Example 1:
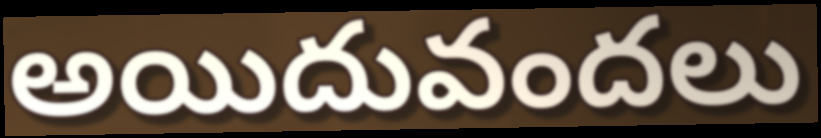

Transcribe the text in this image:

అయిదువందలు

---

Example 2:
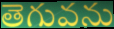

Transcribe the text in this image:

తెగువను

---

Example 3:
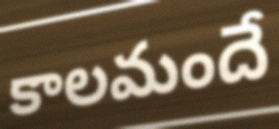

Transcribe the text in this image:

కాలమందే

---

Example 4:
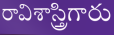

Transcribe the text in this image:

రావిశాస్త్రిగారు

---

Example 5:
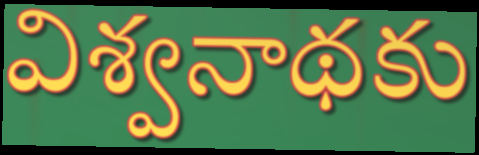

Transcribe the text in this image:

విశ్వనాథకు